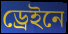
ড্রেইনে